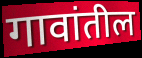
गावांतील